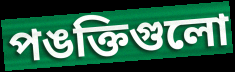
পঙক্তিগুলো